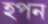
হপন